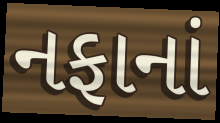
નફાનાં